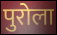
पुरोला